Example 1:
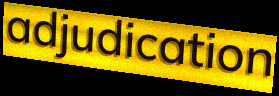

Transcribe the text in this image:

adjudication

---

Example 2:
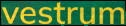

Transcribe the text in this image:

vestrum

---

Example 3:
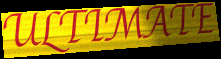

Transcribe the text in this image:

ULTIMATE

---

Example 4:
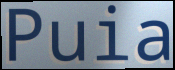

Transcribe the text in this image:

Puia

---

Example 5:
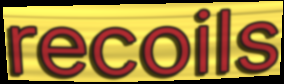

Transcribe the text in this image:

recoils